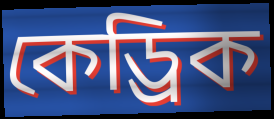
কেড্রিক